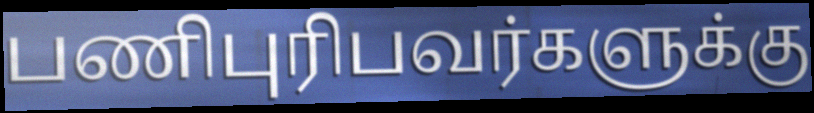
பணிபுரிபவர்களுக்கு